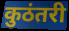
कुठंतरी